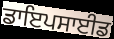
ਡਾਇਪਸਾਈਡ